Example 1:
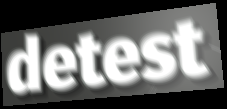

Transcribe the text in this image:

detest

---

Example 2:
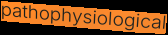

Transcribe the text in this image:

pathophysiological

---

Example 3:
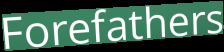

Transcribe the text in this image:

Forefathers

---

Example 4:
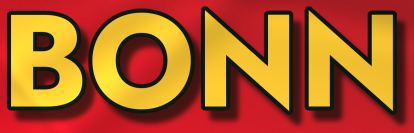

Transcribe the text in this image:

BONN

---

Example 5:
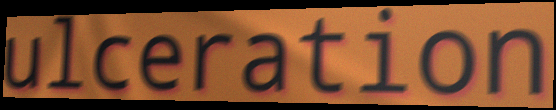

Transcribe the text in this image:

ulceration